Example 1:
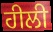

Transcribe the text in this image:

ਹੀਲੀ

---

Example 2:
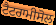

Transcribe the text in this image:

ਟੈਟਰਾਮੀਸੋਲ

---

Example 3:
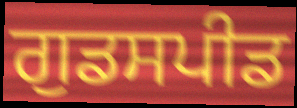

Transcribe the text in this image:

ਗੁਡਸਪੀਡ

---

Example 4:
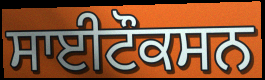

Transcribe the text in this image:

ਸਾਈਟੌਕਸਨ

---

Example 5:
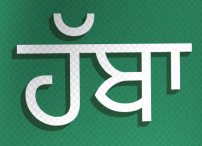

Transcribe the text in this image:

ਹੱਬਾ